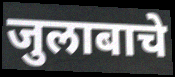
जुलाबाचे